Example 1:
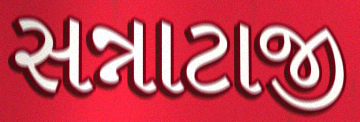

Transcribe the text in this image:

સન્નાટાજી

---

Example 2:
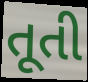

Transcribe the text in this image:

તૂતી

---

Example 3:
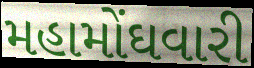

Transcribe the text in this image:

મહામોંઘવારી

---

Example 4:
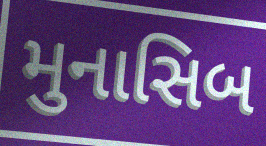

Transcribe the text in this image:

મુનાસિબ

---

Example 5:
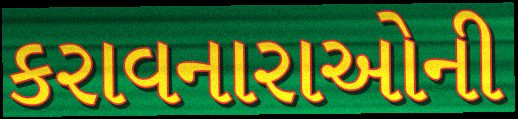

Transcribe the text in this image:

કરાવનારાઓની